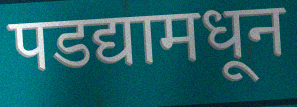
पडद्यामधून